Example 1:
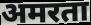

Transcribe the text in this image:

अमरता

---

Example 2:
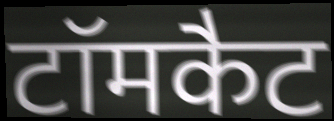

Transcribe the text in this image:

टॉमकैट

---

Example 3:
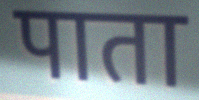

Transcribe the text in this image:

पाता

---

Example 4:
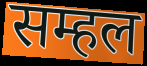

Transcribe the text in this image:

सम्हल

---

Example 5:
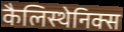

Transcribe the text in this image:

कैलिस्थेनिक्स